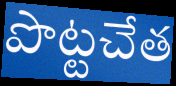
పొట్టచేత